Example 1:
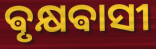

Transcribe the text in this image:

ଵୃକ୍ଷଵାସୀ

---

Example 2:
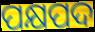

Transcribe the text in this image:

ପକ୍ଷପଦ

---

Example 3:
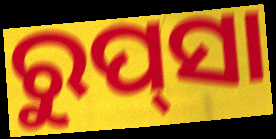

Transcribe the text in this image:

ରୁପ୍‍ସା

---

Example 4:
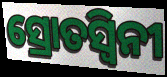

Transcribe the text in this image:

ସ୍ରୋତସ୍ୱିନୀ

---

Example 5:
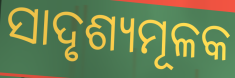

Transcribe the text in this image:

ସାଦୃଶ୍ୟମୂଳକ